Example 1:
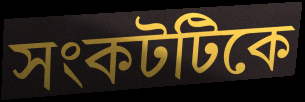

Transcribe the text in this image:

সংকটটিকে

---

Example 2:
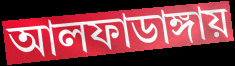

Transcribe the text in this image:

আলফাডাঙ্গায়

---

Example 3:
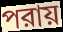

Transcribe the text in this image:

পরায়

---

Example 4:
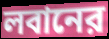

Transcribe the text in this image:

লবানের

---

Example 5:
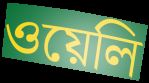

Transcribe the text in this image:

ওয়েলি